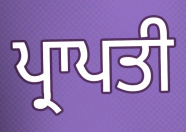
ਪ੍ਰਾਪਤੀ